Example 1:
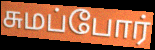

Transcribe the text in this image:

சுமப்போர்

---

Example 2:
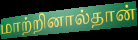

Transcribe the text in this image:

மாற்றினால்தான்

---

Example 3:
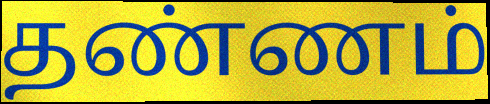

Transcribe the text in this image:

தண்ணம்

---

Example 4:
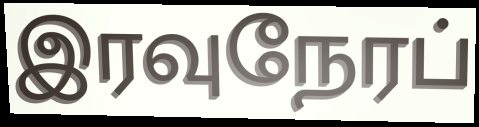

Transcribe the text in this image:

இரவுநேரப்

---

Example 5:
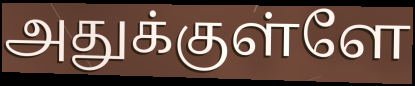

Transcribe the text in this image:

அதுக்குள்ளே